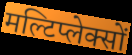
मल्टिप्लेक्सों